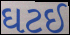
ઘટઈ